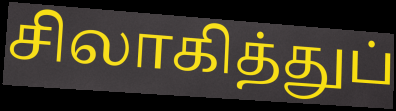
சிலாகித்துப்